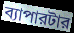
ব্যাপারটার